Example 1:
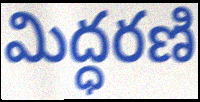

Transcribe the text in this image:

మిద్ధరణి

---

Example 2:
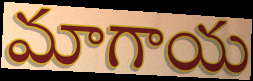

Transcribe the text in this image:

మాగాయ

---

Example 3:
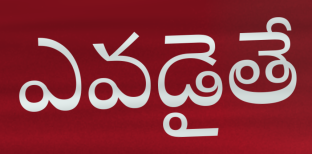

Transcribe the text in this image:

ఎవడైతే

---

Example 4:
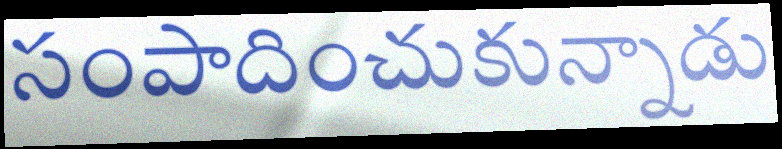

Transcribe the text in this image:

సంపాదించుకున్నాడు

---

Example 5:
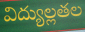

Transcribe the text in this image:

విద్యుల్లతల